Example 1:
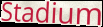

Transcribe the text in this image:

Stadium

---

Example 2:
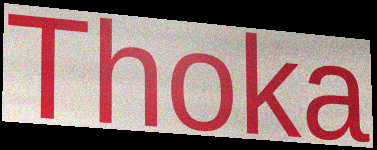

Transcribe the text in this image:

Thoka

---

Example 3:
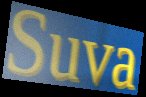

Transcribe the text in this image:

Suva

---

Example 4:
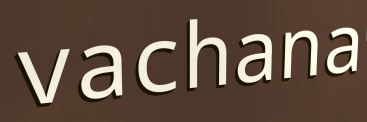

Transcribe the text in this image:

vachana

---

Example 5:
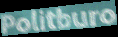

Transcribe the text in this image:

Politburo